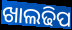
ଖାଲଢିପ